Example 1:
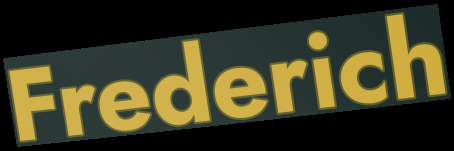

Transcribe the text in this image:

Frederich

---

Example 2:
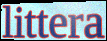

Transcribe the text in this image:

littera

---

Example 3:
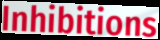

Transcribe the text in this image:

Inhibitions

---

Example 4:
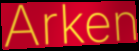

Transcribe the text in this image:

Arken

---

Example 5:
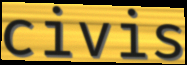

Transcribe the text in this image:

civis